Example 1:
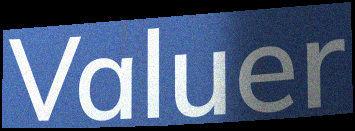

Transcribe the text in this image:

Valuer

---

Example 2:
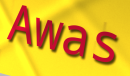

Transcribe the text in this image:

Awas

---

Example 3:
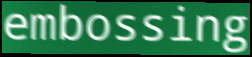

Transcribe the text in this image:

embossing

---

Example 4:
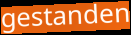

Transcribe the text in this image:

gestanden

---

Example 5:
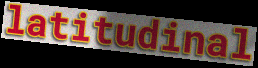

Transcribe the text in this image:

latitudinal